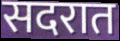
सदरात